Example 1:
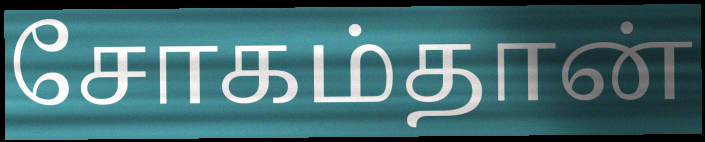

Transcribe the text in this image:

சோகம்தான்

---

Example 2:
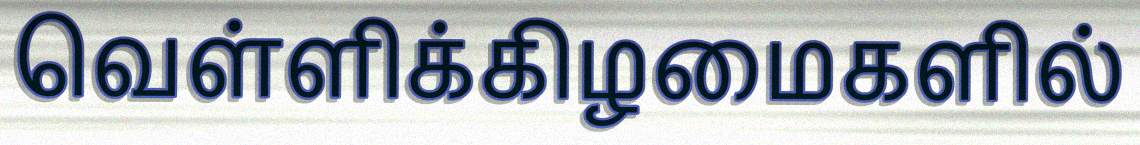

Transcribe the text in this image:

வெள்ளிக்கிழமைகளில்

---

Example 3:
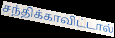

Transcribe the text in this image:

சந்திக்காவிட்டால்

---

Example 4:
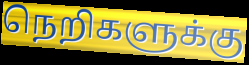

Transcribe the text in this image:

நெறிகளுக்கு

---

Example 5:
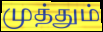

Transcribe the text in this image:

முத்தும்